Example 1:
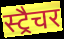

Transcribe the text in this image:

स्ट्रैचर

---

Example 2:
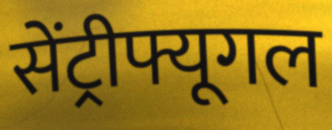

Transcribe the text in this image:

सेंट्रीफ्यूगल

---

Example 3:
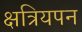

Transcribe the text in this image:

क्षत्रियपन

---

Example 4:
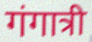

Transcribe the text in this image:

गंगात्री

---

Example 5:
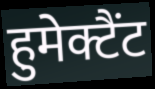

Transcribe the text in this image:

हुमेक्टैंट